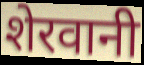
शेरवानी